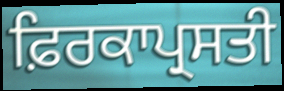
ਫ਼ਿਰਕਾਪ੍ਰਸਤੀ